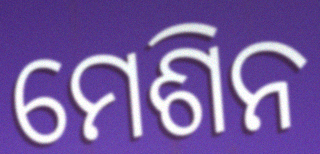
ମେଶିନ